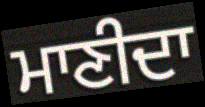
ਮਾਣੀਦਾ